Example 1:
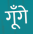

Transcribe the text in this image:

गूँगे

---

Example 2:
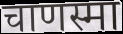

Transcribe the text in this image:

चाणस्मा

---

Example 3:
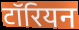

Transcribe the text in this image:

टॉरियन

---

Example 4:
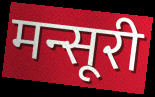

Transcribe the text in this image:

मन्सूरी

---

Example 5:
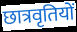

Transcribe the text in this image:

छात्रवृतियों